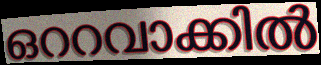
ഒററവാക്കിൽ